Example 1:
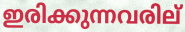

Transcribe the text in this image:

ഇരിക്കുന്നവരില്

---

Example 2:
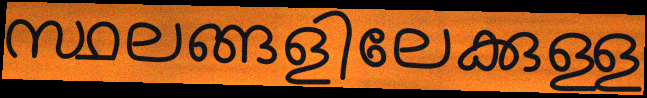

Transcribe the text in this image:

സ്ഥലങ്ങളിലേക്കുള്ള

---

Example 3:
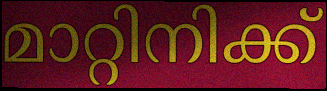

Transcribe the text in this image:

മാറ്റിനിക്ക്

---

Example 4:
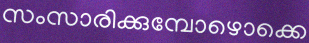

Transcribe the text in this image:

സംസാരിക്കുമ്പോഴൊക്കെ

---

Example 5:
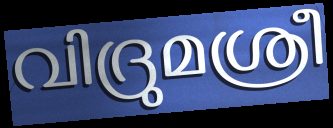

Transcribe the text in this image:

വിദ്രുമശ്രീ